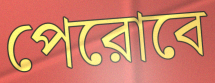
পেরোবে